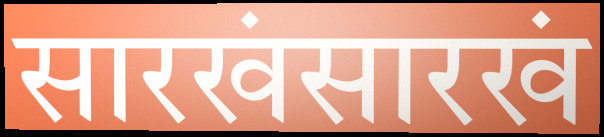
सारखंसारखं